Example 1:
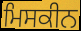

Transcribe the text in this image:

ਮਿਸਕੀਨ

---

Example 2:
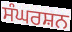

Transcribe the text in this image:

ਸੰਘਰਸ਼ਨ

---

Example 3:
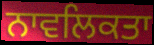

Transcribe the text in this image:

ਨਾਵਲਿਕਤਾ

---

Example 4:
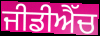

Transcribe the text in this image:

ਜੀਡੀਐੱਚ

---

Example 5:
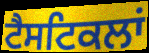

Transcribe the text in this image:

ਟੈਸਟਿਕਲਾਂ